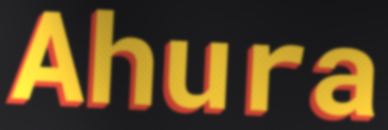
Ahura